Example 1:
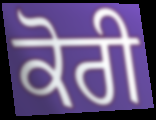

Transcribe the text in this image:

ਕੋਰੀ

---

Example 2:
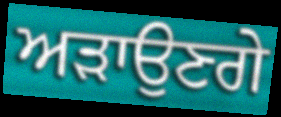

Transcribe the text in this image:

ਅੜਾਉਣਗੇ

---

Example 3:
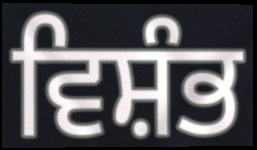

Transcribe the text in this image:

ਵਿਸ਼ੰਭ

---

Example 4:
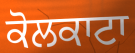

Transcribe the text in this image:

ਕੋਲਕਾਟਾ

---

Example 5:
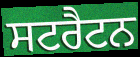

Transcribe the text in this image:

ਸਟਰੈਟਨ